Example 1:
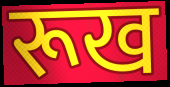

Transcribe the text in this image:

रूख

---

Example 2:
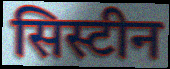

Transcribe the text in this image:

सिस्टीन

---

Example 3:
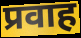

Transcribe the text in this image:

प्रवाह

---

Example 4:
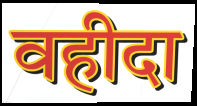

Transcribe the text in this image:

वहीदा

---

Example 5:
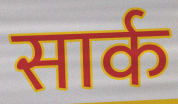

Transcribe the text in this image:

सार्क